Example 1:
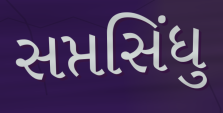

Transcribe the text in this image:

સપ્તસિંધુ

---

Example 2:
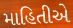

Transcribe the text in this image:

માહિતીએ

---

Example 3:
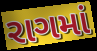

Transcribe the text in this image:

રાગમાં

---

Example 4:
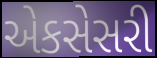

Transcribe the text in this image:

એકસેસરી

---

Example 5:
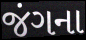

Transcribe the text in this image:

જંગના